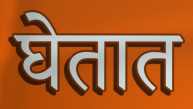
घेतात